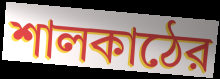
শালকাঠের